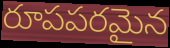
రూపపరమైన